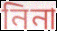
নিনা